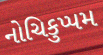
નોચિકુપ્પમ